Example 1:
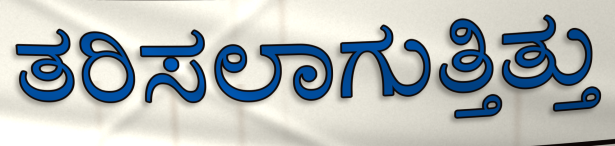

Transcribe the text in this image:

ತರಿಸಲಾಗುತ್ತಿತ್ತು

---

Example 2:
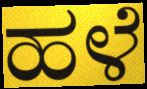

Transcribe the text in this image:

ಹಳೆ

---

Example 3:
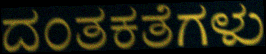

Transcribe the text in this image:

ದಂತಕತೆಗಳು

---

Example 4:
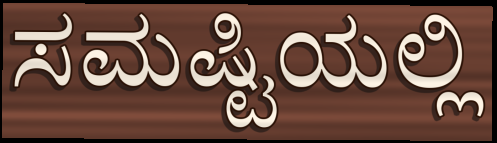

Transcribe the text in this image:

ಸಮಷ್ಟಿಯಲ್ಲಿ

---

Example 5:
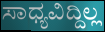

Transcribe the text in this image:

ಸಾಧ್ಯವಿದ್ದಿಲ್ಲ